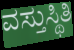
ವಸ್ತುಸ್ಥಿತಿ